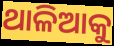
ଥାଳିଆକୁ